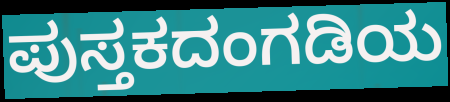
ಪುಸ್ತಕದಂಗಡಿಯ